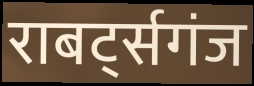
राबर्ट्सगंज